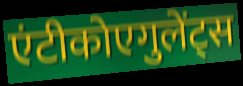
एंटीकोएगुलेंट्स